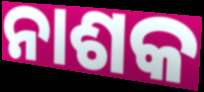
ନାଶକ